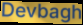
Devbagh